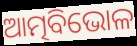
ଆତ୍ମବିଭୋଳ